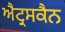
ਐਟ੍ਰਸਕੈਨ